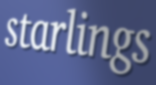
starlings